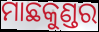
ମାଛକୁଣ୍ଡର